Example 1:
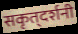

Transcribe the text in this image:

सकृत्‌दर्शनी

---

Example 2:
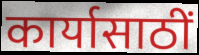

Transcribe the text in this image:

कार्यासाठीं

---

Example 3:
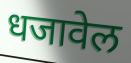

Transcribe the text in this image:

धजावेल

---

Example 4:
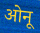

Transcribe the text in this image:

ओनू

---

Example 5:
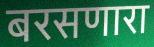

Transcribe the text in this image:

बरसणारा